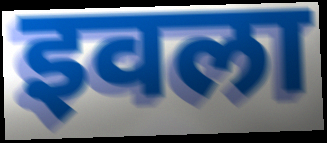
इवला